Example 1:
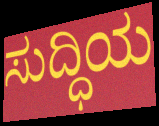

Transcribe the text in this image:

ಸುದ್ಧಿಯ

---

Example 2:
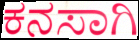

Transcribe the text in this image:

ಕನಸಾಗಿ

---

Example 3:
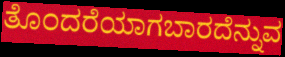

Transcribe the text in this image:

ತೊಂದರೆಯಾಗಬಾರದೆನ್ನುವ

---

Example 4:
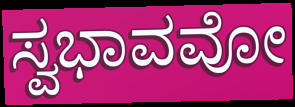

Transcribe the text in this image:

ಸ್ವಭಾವವೋ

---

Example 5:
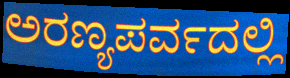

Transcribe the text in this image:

ಅರಣ್ಯಪರ್ವದಲ್ಲಿ